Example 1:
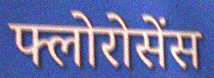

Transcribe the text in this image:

फ्लोरोसेंस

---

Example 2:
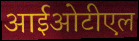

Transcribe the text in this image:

आईओटीएल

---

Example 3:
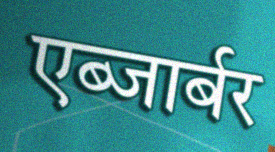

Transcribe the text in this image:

एब्जार्बर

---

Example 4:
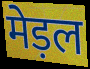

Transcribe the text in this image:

मेड़ल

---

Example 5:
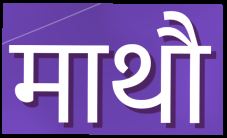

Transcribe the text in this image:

माथौ